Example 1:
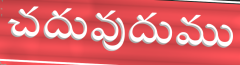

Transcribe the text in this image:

చదువుదుము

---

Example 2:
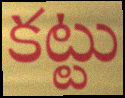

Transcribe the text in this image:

కట్టు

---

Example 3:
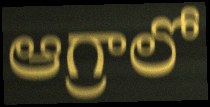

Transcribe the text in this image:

ఆగ్రాలో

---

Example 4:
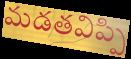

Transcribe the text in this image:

మడతవిప్పి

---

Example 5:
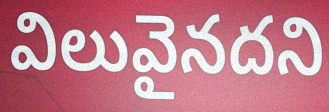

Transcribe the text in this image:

విలువైనదని